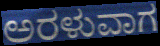
ಅರಳುವಾಗ